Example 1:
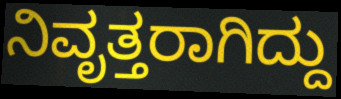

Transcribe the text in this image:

ನಿವೃತ್ತರಾಗಿದ್ದು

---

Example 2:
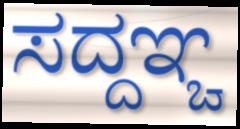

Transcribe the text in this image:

ಸದ್ದಞ್ಚ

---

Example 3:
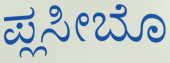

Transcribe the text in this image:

ಪ್ಲಸೀಬೊ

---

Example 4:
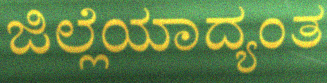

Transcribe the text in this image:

ಜಿಲ್ಲೆಯಾದ್ಯಂತ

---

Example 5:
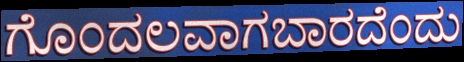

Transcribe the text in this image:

ಗೊಂದಲವಾಗಬಾರದೆಂದು